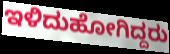
ಇಳಿದುಹೋಗಿದ್ದರು